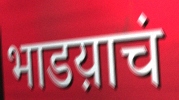
भाडय़ाचं